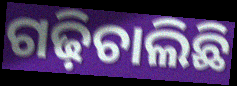
ଗଢ଼ିଚାଲିଛି